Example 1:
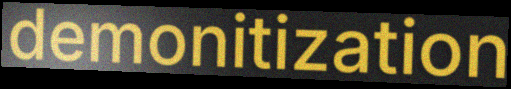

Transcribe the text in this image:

demonitization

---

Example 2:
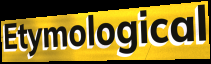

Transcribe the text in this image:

Etymological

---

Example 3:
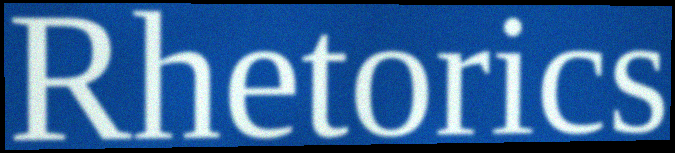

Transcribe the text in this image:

Rhetorics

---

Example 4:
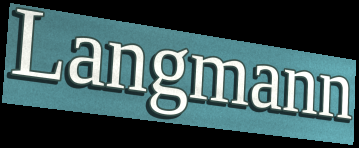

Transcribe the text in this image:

Langmann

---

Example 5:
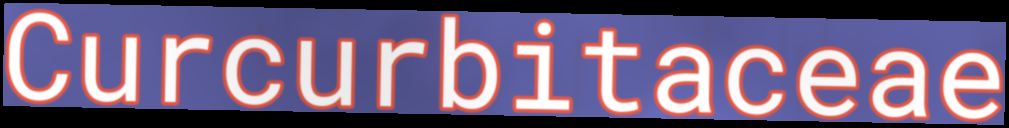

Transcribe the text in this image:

Curcurbitaceae